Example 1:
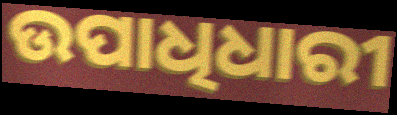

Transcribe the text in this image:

ଉପାଧିଧାରୀ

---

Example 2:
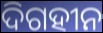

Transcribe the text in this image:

ଦିଗହୀନ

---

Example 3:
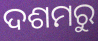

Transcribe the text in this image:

ଦଶମରୁ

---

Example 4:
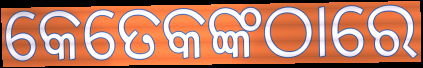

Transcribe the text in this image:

କେତେକଙ୍କଠାରେ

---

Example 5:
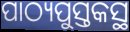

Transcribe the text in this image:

ପାଠ୍ୟପୁସ୍ତକସ୍ଥ